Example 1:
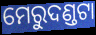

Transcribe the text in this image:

ମେରୁଦଣ୍ଡଟା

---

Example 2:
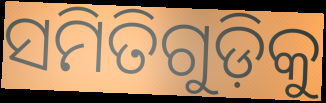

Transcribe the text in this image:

ସମିତିଗୁଡ଼ିକୁ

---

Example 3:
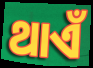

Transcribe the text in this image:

ଥାଏଁ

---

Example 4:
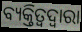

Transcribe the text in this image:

ବ୍ୟକ୍ତିତ୍ୱଦ୍ୱାରା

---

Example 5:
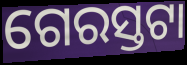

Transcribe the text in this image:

ଗେରସ୍ତଟା